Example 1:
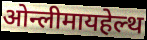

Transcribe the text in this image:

ओन्लीमायहेल्थ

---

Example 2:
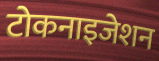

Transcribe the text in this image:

टोकनाइजेशन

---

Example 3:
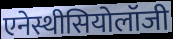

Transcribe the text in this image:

एनेस्थीसियोलॉजी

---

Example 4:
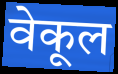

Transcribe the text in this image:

वेकूल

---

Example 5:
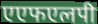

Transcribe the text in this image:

एएफएलपी